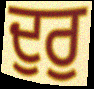
ਦੁਰੁ